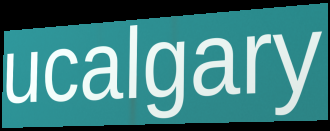
ucalgary